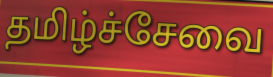
தமிழ்ச்சேவை